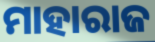
ମାହାରାଜ